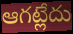
ఆగట్లేదు